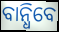
ବାନ୍ଧିବେ